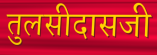
तुलसीदासजी